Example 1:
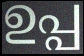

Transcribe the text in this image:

ഉപ്പ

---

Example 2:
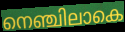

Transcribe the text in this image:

നെഞ്ചിലാകെ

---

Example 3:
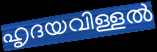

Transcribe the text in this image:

ഹൃദയവിള്ളൽ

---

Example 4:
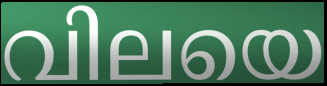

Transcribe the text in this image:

വിലയെ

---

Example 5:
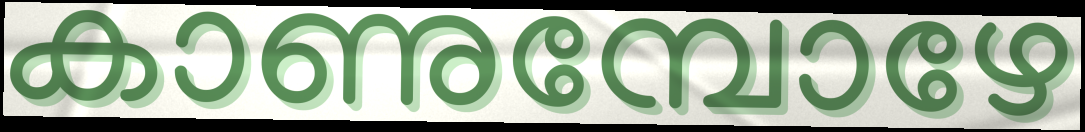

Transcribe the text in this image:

കാണുമ്പോഴേ